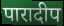
पारादीप